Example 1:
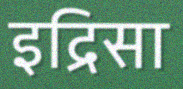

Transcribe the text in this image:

इद्रिसा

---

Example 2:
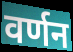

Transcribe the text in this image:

वर्णन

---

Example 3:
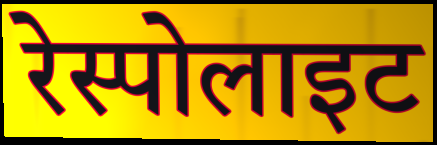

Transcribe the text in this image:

रेस्पोलाइट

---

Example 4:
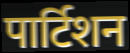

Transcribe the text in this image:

पार्टिशन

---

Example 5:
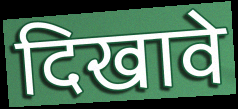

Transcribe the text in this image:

दिखावे